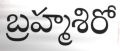
బ్రహ్మశిరో